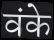
वंके